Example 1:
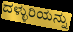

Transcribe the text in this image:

ದಳ್ಳುರಿಯನ್ನು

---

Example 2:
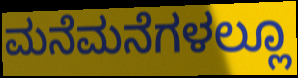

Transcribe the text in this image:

ಮನೆಮನೆಗಳಲ್ಲೂ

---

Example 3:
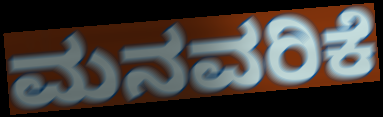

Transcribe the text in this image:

ಮನವರಿಕೆ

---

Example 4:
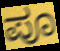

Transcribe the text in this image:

ಪೂ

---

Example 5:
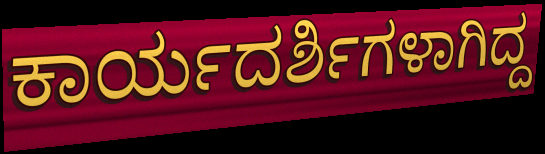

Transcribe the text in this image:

ಕಾರ್ಯದರ್ಶಿಗಳಾಗಿದ್ದ